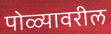
पोळ्यावरील